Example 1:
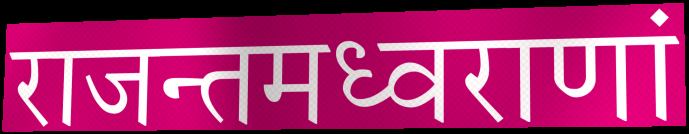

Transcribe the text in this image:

राजन्तमध्वराणां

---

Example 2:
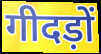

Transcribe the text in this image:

गीदड़ों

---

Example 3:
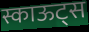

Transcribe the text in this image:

स्काऊट्स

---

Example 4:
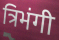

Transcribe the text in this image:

त्रिभंगी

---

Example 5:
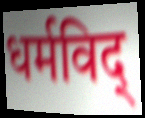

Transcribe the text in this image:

धर्मविद्